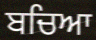
ਬਚਿਆ